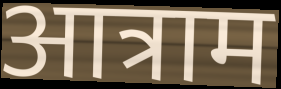
आत्राम